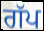
ਗੱਪ